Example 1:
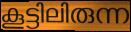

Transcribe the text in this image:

കൂട്ടിലിരുന്ന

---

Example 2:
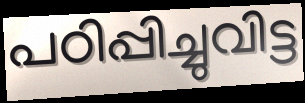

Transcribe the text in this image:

പഠിപ്പിച്ചുവിട്ട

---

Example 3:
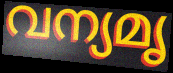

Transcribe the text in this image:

വന്യമൃ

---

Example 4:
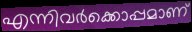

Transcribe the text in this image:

എന്നിവർക്കൊപ്പമാണ്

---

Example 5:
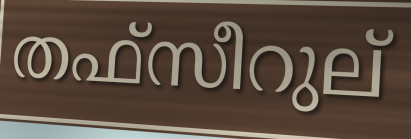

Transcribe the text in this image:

തഫ്സീറുല്